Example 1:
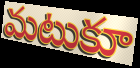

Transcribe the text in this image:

మటుకూ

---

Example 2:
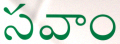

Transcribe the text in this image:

సవాం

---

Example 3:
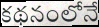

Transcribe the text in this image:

కథనంలోనే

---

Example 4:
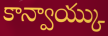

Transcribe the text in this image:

కాన్వాయ్కు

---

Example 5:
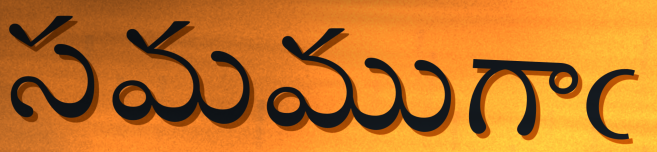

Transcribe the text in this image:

సమముగాఁ